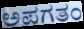
ಅಪಗತಂ